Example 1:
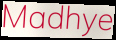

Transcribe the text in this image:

Madhye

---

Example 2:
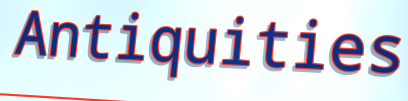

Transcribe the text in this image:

Antiquities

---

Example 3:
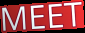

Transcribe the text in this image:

MEET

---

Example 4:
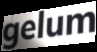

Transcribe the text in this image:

gelum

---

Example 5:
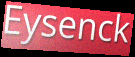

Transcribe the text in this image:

Eysenck